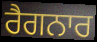
ਰੈਗਨਾਰ